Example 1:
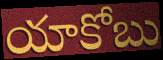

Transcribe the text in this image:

యాకోబు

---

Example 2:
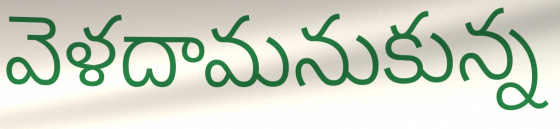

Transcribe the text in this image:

వెళదామనుకున్న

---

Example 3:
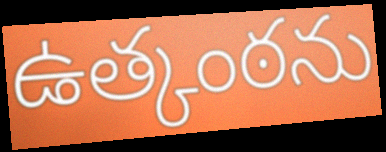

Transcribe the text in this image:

ఉత్కంఠను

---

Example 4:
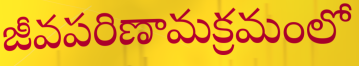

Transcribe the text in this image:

జీవపరిణామక్రమంలో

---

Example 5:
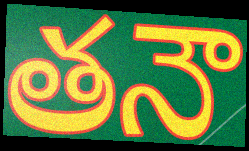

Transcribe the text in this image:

తనౌ